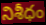
నిశీధం